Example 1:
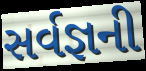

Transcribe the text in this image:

સર્વજ્ઞની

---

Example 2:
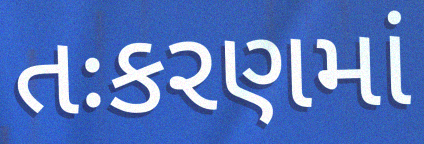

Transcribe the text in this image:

તઃકરણમાં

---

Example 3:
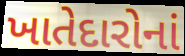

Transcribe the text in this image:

ખાતેદારોનાં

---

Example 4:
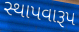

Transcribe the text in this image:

સ્થાપવારૂપ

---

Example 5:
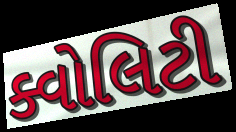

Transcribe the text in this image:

ક્વોલિટી